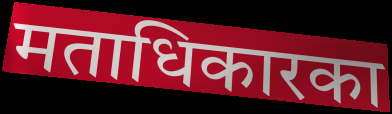
मताधिकारका